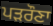
ਪੜਰੌਣਾ